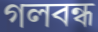
গলবন্ধ